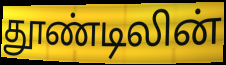
தூண்டிலின்